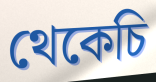
থেকেচি